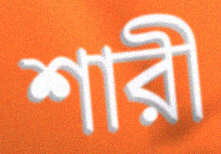
শারী